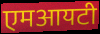
एमआयटी